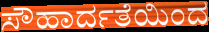
ಸೌಹಾರ್ದತೆಯಿಂದ